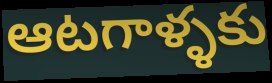
ఆటగాళ్ళకు